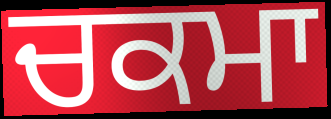
ਚਕਮਾ